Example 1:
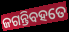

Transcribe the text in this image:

ଜଗନ୍ତିବହତେ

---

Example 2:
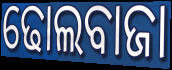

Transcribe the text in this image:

ଢୋଲବାଜା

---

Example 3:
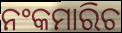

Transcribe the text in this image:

ନଂକମାରିଚ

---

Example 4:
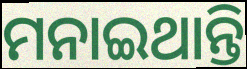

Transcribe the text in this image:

ମନାଇଥାନ୍ତି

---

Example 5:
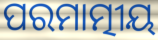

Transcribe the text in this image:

ପରମାତ୍ମୀୟ